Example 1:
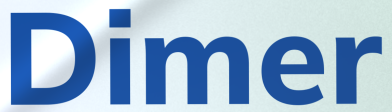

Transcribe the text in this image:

Dimer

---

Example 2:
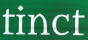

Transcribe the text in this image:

tinct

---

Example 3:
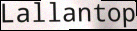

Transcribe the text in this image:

Lallantop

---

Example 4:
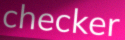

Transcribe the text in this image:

checker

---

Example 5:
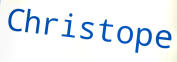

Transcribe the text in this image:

Christope